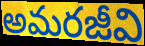
అమరజీవి